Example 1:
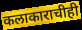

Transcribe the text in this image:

कलाकाराचीही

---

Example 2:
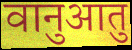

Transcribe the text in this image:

वानुआतु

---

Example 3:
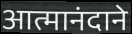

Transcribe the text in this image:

आत्मानंदाने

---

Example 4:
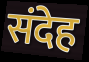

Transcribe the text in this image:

संदेह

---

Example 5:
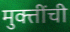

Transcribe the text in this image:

मुक्तींची